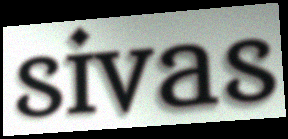
sivas